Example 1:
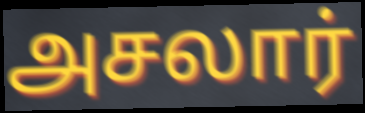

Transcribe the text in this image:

அசலார்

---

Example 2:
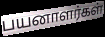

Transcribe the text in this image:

பயனாளர்கள்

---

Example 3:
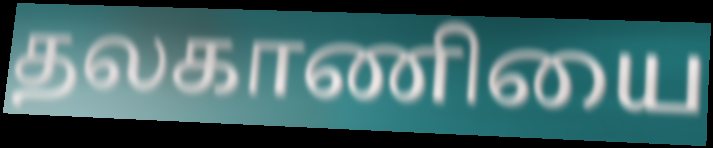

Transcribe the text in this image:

தலகாணியை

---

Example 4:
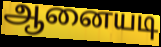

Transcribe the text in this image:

ஆனையடி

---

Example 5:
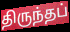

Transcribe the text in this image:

திருந்தப்